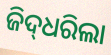
ଜିଦ୍‌ଧରିଲା